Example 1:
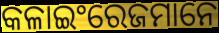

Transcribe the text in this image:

କଳାଇଂରେଜମାନେ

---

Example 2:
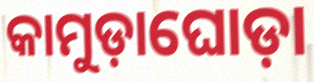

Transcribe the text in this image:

କାମୁଡ଼ାଘୋଡ଼ା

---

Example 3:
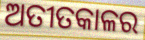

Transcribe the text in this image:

ଅତୀତକାଳର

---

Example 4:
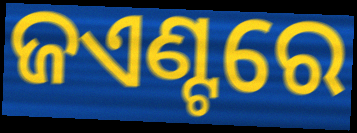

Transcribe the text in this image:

ଜଏଣ୍ଟରେ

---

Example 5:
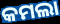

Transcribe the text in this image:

କମଲା